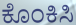
ಕೊಂಕಿಸಿ